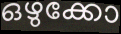
ഒഴുക്കോ